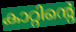
കാറ്റിന്റെ